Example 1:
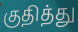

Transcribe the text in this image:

குதித்து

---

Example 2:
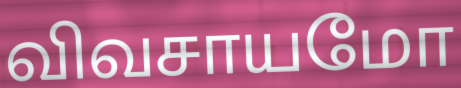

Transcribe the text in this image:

விவசாயமோ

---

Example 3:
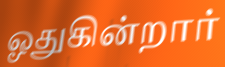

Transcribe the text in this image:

ஓதுகின்றார்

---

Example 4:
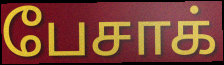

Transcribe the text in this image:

பேசாக்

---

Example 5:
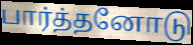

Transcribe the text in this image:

பார்த்தனோடு